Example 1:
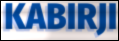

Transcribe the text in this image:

KABIRJI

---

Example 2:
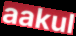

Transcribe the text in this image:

aakul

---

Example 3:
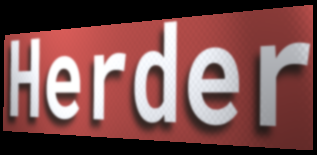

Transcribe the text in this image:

Herder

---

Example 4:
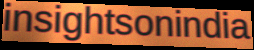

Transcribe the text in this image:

insightsonindia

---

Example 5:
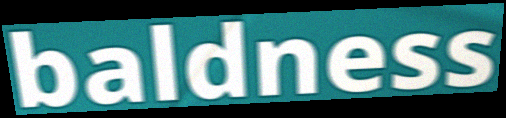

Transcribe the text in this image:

baldness